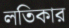
লতিকার